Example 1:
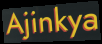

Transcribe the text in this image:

Ajinkya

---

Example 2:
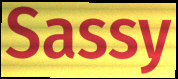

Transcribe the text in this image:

Sassy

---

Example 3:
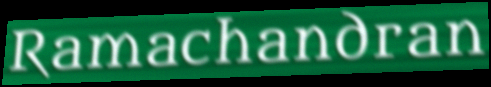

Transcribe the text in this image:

Ramachandran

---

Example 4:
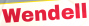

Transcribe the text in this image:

Wendell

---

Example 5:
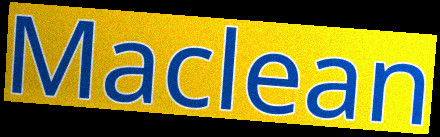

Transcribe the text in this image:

Maclean